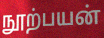
நூற்பயன்